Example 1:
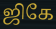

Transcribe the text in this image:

ஜிகே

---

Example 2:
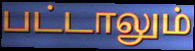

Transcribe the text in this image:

பட்டாலும்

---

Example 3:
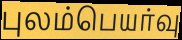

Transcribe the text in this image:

புலம்பெயர்வு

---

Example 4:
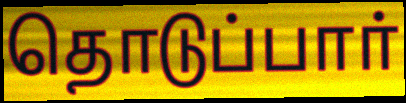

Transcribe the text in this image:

தொடுப்பார்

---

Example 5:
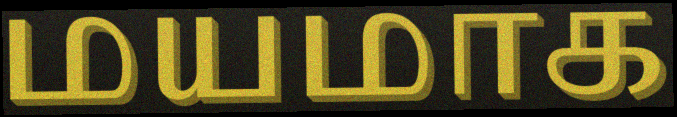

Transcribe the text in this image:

மயமாக